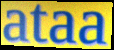
ataa